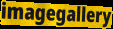
imagegallery